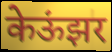
केऊंझर